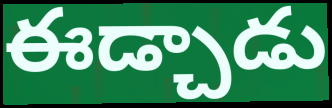
ఈడ్చాడు